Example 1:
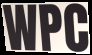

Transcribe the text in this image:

WPC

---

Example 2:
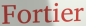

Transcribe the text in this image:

Fortier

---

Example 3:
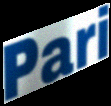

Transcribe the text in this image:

Pari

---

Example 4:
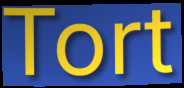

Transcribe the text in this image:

Tort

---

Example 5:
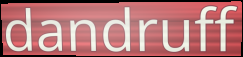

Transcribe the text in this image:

dandruff